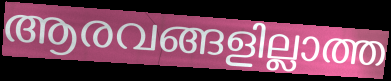
ആരവങ്ങളില്ലാത്ത